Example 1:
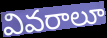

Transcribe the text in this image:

వివరాలూ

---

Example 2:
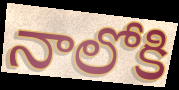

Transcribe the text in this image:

నాలోకి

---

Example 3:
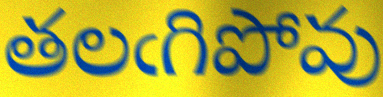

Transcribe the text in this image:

తలఁగిపోవు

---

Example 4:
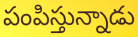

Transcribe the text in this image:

పంపిస్తున్నాడు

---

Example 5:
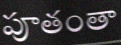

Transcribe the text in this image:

పూతంతా